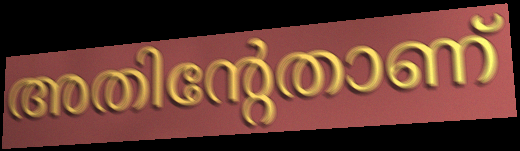
അതിന്റേതാണ്